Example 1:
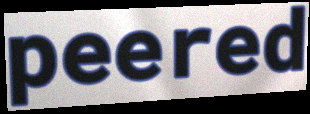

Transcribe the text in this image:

peered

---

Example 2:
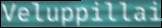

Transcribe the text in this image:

Veluppillai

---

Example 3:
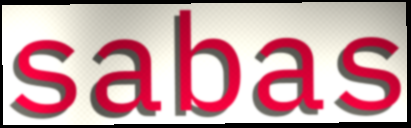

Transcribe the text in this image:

sabas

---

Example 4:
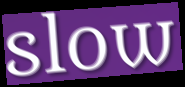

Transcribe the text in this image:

slow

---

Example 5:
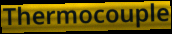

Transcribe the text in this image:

Thermocouple